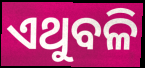
ଏଥୁବଳି